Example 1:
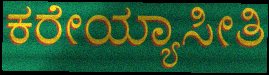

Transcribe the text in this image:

ಕರೇಯ್ಯಾಸೀತಿ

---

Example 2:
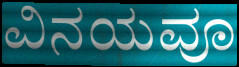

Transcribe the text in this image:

ವಿನಯವೂ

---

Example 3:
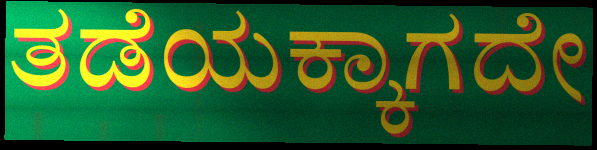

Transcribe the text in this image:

ತಡೆಯಕ್ಕಾಗದೇ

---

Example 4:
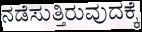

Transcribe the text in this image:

ನಡೆಸುತ್ತಿರುವುದಕ್ಕೆ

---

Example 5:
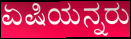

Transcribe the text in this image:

ಏಷಿಯನ್ನರು